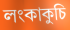
লংকাকুচি